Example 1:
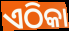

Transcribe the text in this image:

ଏଠିକା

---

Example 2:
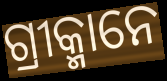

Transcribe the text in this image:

ଗ୍ରୀକ୍ମାନେ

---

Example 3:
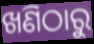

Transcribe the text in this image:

ଖଣିଠାରୁ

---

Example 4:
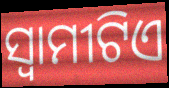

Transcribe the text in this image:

ସ୍ୱାମୀଟିଏ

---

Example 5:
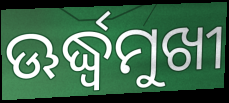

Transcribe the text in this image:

ଊର୍ଦ୍ଧ୍ବମୁଖୀ